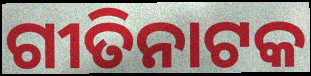
ଗୀତିନାଟକ